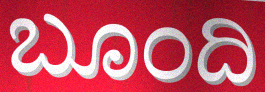
ಬೂಂದಿ